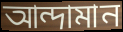
আন্দামান